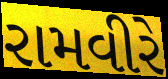
રામવીરે